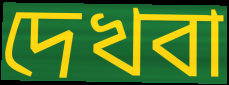
দেখবা